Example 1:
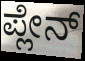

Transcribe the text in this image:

ಪ್ಲೇನ್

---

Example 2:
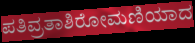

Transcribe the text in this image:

ಪತಿವ್ರತಾಶಿರೋಮಣಿಯಾದ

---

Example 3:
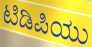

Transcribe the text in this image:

ಟಿಡಿಪಿಯು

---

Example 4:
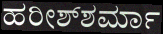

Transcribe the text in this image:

ಹರೀಶ್‌ಶರ್ಮಾ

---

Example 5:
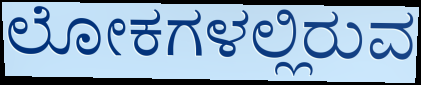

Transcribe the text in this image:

ಲೋಕಗಳಲ್ಲಿರುವ